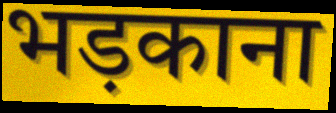
भड़काना